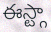
ఈస్ట్గా